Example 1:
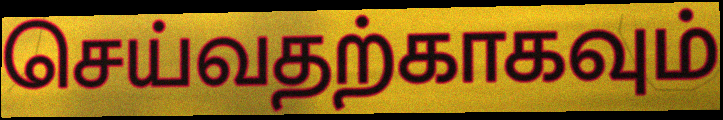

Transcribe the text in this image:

செய்வதற்காகவும்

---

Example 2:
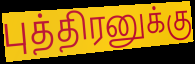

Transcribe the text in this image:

புத்திரனுக்கு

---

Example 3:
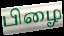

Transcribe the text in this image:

பிழை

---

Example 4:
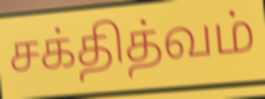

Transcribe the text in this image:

சக்தித்வம்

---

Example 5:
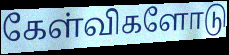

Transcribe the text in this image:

கேள்விகளோடு